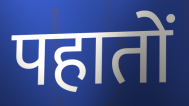
पहातों